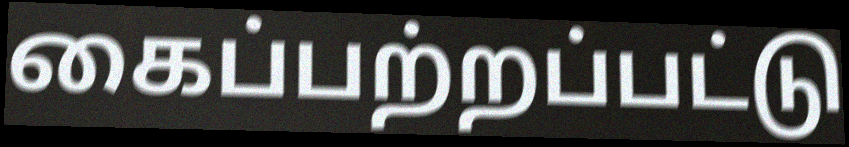
கைப்பற்றப்பட்டு